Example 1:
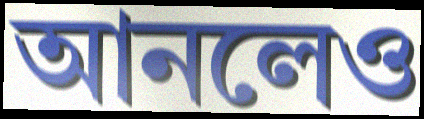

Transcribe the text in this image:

আনলেও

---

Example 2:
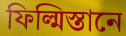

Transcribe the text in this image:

ফিল্মিস্তানে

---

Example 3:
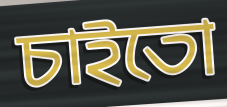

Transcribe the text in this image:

চাইতো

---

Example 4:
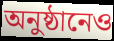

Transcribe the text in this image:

অনুষ্ঠানেও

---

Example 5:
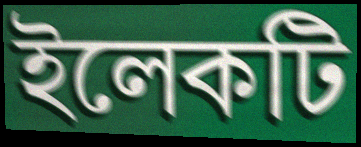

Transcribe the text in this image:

ইলেকটি